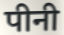
पीनी